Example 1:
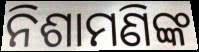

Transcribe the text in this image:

ନିଶାମଣିଙ୍କ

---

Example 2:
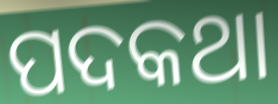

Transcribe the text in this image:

ପଦକଥା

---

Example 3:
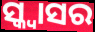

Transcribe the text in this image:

ସ୍କ୍ବାସର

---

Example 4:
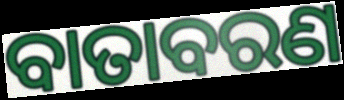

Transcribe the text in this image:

ବାତାବରଣ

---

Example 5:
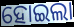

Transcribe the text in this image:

ହୋଇଲା